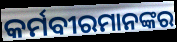
କର୍ମବୀରମାନଙ୍କର